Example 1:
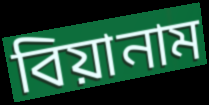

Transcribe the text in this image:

বিয়ানাম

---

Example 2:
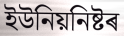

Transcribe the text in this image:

ইউনিয়নিষ্টৰ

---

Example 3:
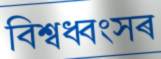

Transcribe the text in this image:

বিশ্বধ্বংসৰ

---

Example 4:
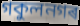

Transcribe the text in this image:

গকুলনগৰ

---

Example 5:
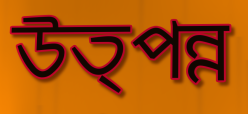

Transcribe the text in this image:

উত্পন্ন